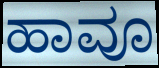
ಹಾವೂ